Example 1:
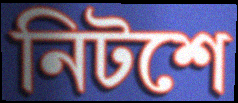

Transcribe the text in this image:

নিটশে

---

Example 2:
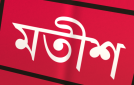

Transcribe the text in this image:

মতীশ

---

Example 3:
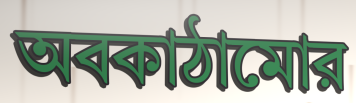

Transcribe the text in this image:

অবকাঠামোর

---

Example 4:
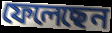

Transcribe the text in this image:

ফেলেছেন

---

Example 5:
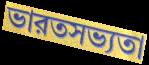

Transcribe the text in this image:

ভারতসভ্যতা